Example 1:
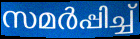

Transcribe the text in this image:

സമർപ്പിച്ച്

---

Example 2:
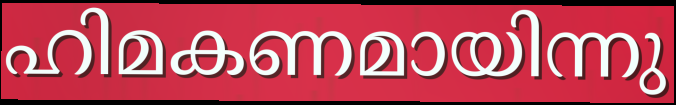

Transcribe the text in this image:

ഹിമകണമായിന്നു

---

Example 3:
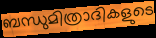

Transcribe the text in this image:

ബന്ധുമിത്രാദികളുടെ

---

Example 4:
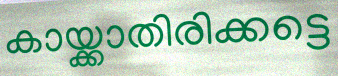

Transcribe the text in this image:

കായ്ക്കാതിരിക്കട്ടെ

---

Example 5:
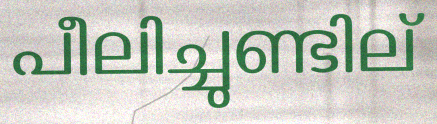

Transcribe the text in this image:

പീലിച്ചുണ്ടില്